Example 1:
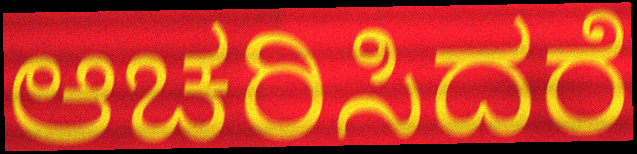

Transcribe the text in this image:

ಆಚರಿಸಿದರೆ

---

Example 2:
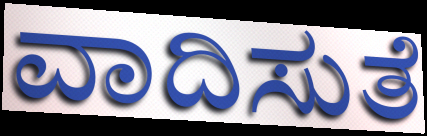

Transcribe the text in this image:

ವಾದಿಸುತೆ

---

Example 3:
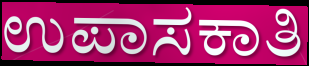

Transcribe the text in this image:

ಉಪಾಸಕಾತಿ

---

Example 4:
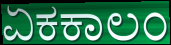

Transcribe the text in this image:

ಏಕಕಾಲಂ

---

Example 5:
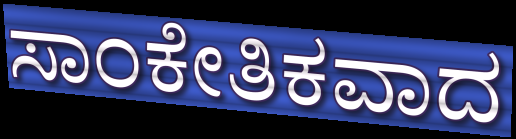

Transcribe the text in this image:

ಸಾಂಕೇತಿಕವಾದ